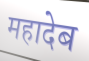
महादेब